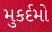
મુકર્દમો